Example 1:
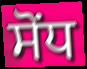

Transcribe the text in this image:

ਸੋਂਧ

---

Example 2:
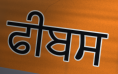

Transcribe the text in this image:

ਫੀਬਸ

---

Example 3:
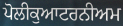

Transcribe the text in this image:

ਪੋਲੀਕੁਆਟਰਨੀਅਮ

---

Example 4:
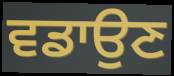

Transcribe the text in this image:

ਵਡਾਉਣ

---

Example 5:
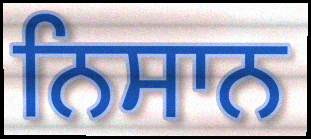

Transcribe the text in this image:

ਨਿਸਾਨ